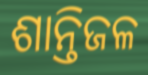
ଶାନ୍ତିଜଳ